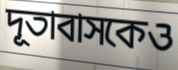
দূতাবাসকেও